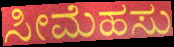
ಸೀಮೆಹಸು